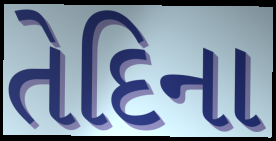
તેદિના